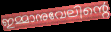
ഇമ്മാനുവേലിന്റെ